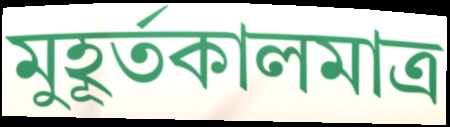
মুহূর্তকালমাত্র